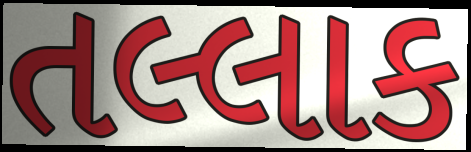
તલ્લાક